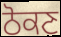
ਠੋਕਣ